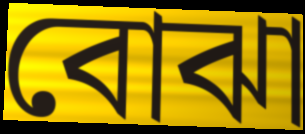
বোঝা